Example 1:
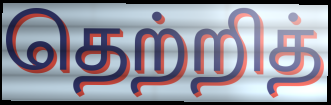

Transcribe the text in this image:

தெற்றித்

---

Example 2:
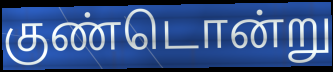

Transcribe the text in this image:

குண்டொன்று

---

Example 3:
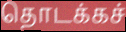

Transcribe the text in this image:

தொடக்கச்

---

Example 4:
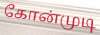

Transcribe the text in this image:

கோன்முடி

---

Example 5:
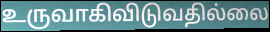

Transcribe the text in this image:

உருவாகிவிடுவதில்லை